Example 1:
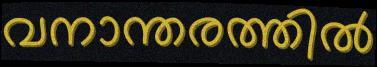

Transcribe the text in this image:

വനാന്തരത്തിൽ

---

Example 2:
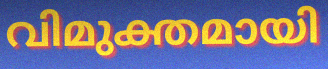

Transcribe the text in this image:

വിമുക്തമായി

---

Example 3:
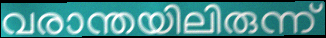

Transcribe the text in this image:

വരാന്തയിലിരുന്ന്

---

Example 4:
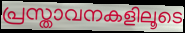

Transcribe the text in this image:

പ്രസ്താവനകളിലൂടെ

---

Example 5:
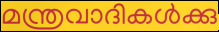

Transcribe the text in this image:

മന്ത്രവാദികൾക്കു